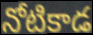
నోటికాడ